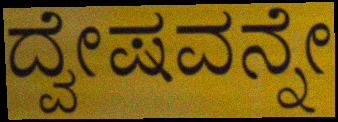
ದ್ವೇಷವನ್ನೇ